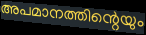
അപമാനത്തിന്റെയും